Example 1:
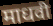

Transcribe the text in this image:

माधवी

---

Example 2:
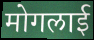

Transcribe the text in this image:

मोगलाई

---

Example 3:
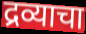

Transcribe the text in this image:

द्रव्याचा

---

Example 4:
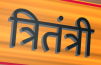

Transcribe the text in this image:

त्रितंत्री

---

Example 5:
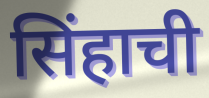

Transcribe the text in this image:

सिंहाची